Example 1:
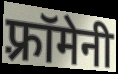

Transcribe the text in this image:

फ़्रॉमेनी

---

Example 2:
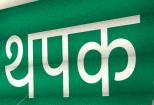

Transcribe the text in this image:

थपक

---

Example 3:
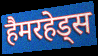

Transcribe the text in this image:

हैमरहेड्स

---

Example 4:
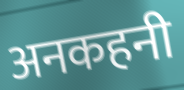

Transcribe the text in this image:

अनकहनी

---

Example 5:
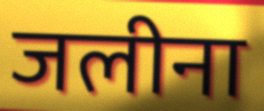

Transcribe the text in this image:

जलीना